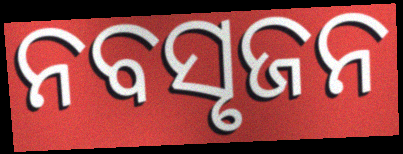
ନବସୃଜନ